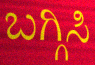
ಬಗ್ಗಿಸಿ